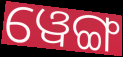
ୱେଙ୍ଗ